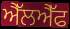
ਐੱਲਐੱਫ